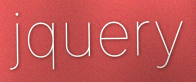
jquery